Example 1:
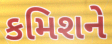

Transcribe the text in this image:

કમિશને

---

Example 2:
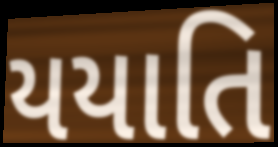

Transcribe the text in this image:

યયાતિ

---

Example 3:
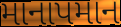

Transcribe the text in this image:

માનાપમાન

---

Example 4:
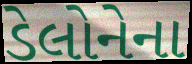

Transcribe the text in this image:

ડેલોનેના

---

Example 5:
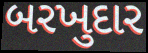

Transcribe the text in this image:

બરખુદાર